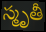
స్మృతీ